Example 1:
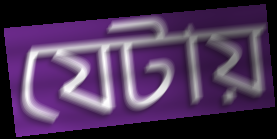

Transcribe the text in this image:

যেটায়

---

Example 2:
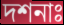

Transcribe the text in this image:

দশনাঃ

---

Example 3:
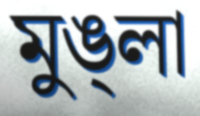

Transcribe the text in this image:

মুঙ্লা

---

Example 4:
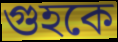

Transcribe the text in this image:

গুহকে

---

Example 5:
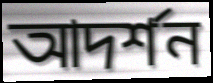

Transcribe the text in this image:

আদর্শন